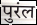
पुरंल